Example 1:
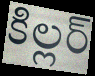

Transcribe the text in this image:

కిల్లర్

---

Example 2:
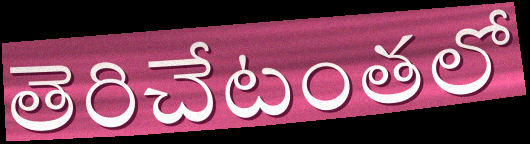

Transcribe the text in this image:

తెరిచేటంతలో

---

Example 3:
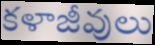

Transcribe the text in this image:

కళాజీవులు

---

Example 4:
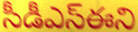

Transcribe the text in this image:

సీడీఎస్ఈని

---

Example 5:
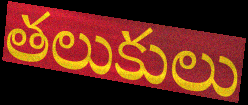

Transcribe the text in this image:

తలుకులు